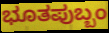
ಭೂತಪುಬ್ಬಂ